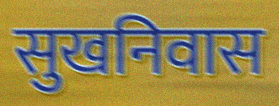
सुखनिवास